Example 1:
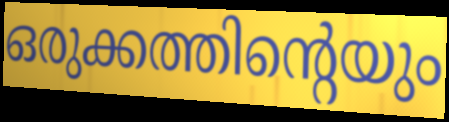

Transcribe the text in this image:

ഒരുക്കത്തിന്റെയും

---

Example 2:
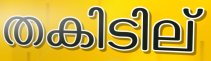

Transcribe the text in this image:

തകിടില്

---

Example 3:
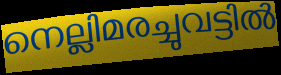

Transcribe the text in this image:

നെല്ലിമരച്ചുവട്ടിൽ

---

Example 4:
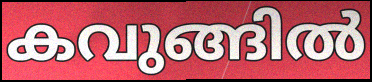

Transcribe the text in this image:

കവുങ്ങിൽ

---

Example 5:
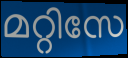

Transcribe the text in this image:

മറ്റിസേ